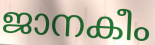
ജാനകീം